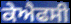
ਕੇਐਫਸੀ